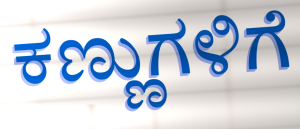
ಕಣ್ಣುಗಳಿಗೆ